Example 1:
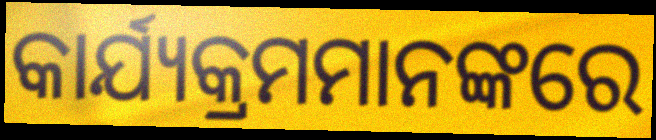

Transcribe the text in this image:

କାର୍ଯ୍ୟକ୍ରମମାନଙ୍କରେ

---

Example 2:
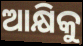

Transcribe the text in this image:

ଆକ୍ଷିକୁ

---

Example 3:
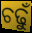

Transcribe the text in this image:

ଚଢୁଁ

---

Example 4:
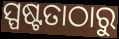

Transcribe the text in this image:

ସ୍ପଷ୍ଟତାଠାରୁ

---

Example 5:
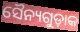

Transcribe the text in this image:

ସୈନ୍ୟଗୁଡ଼ାକ